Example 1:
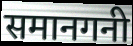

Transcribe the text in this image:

समानगनी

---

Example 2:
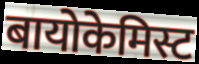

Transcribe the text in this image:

बायोकेमिस्ट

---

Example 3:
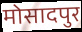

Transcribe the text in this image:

मोसादपुर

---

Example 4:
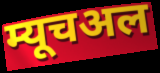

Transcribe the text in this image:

म्यूचअल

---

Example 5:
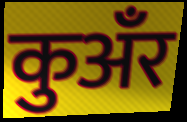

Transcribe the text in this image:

कुअँर